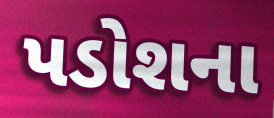
પડોશના